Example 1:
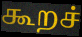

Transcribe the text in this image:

கூறச்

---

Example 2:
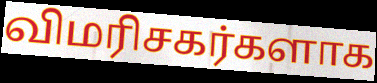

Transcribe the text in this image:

விமரிசகர்களாக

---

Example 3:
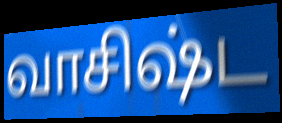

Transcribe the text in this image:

வாசிஷ்ட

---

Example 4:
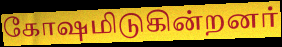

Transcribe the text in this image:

கோஷமிடுகின்றனர்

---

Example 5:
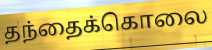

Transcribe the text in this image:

தந்தைக்கொலை